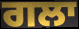
ਗਲਾ